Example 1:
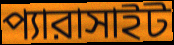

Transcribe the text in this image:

প্যারাসাইট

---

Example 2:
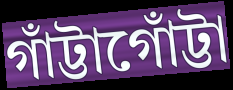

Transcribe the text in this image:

গাঁট্টাগোঁট্টা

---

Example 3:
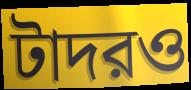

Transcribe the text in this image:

টাদরও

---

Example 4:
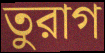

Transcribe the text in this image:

তুরাগ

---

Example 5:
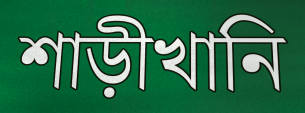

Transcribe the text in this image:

শাড়ীখানি